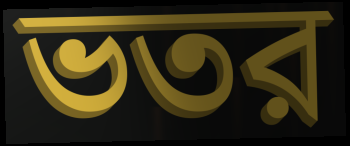
ভতর